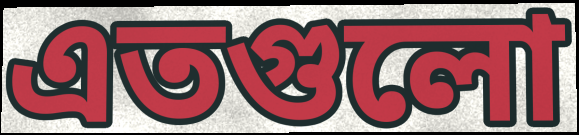
এতগুলো